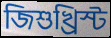
জিশুখ্রিস্ট